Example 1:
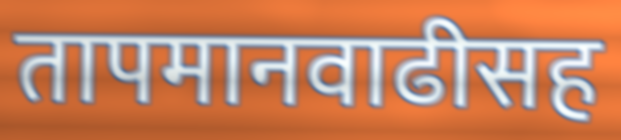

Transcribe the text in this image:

तापमानवाढीसह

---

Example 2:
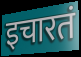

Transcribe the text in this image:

इचारतं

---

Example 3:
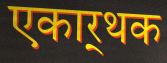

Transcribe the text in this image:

एकार्थक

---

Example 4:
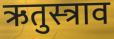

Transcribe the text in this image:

ऋतुस्त्राव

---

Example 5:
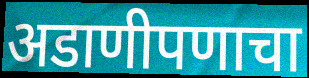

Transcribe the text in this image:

अडाणीपणाचा